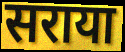
सराया